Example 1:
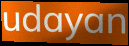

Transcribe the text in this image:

udayan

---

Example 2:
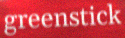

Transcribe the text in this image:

greenstick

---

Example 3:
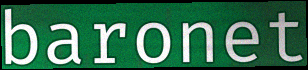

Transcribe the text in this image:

baronet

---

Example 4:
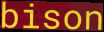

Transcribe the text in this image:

bison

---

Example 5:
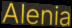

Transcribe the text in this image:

Alenia